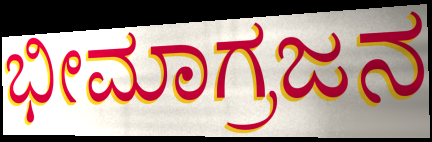
ಭೀಮಾಗ್ರಜನ